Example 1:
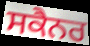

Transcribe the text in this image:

ਸਕੈਨਰ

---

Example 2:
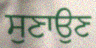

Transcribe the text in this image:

ਸੁਣਾਉਣ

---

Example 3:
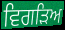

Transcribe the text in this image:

ਵਿਗੜਿਅ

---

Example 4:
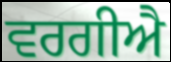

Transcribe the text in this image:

ਵਰਗੀਐ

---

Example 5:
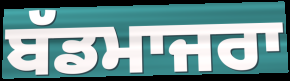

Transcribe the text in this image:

ਬੱਡਮਾਜਰਾ